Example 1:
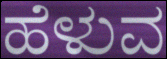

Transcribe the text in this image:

ಹೆಳುವ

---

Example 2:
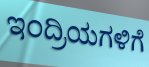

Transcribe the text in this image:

ಇಂದ್ರಿಯಗಳಿಗೆ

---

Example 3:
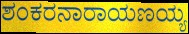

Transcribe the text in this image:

ಶಂಕರನಾರಾಯಣಯ್ಯ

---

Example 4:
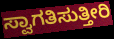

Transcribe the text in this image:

ಸ್ವಾಗತಿಸುತ್ತೀರಿ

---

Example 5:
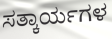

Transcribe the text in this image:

ಸತ್ಕಾರ್ಯಗಳ